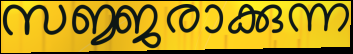
സജ്ജരാക്കുന്ന